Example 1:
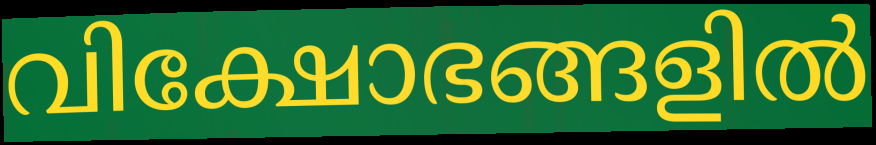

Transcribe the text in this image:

വിക്ഷോഭങ്ങളിൽ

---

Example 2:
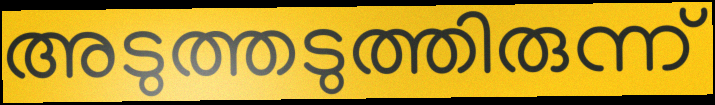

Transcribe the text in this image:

അടുത്തടുത്തിരുന്ന്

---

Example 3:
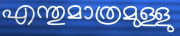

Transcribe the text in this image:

എന്തുമാത്രമുള്ളു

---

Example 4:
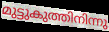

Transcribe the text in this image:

മുട്ടുകുത്തിനിന്നു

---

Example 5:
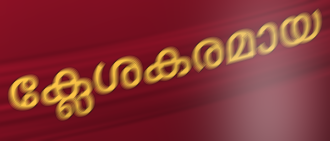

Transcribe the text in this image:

ക്ലേശകരമായ